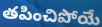
తపించిపోయే